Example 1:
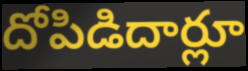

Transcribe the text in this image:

దోపిడిదార్లూ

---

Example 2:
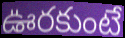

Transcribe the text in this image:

ఊరకుంటే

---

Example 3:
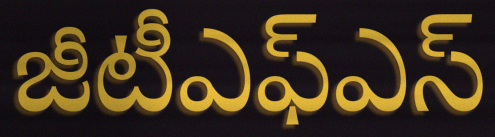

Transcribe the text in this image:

జీటీఎఫ్ఎస్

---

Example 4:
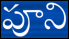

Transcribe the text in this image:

పూని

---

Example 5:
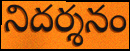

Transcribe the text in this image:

నిదర్శనం